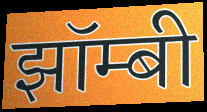
झॉम्बी